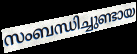
സംബന്ധിച്ചുണ്ടായ